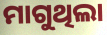
ମାଗୁଥିଲା